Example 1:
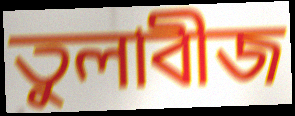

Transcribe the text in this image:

তুলাবীজ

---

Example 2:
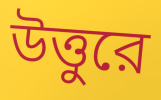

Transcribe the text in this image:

উত্তুরে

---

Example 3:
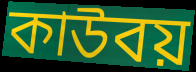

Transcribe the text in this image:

কাউবয়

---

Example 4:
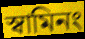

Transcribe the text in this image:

স্বামিনং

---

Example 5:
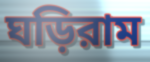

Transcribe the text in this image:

ঘড়িরাম